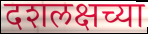
दशलक्षच्या